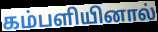
கம்பளியினால்